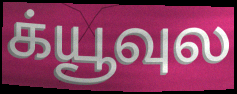
க்யூவுல